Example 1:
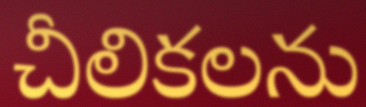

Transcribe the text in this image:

చీలికలను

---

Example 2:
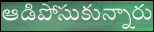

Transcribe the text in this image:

ఆడిపోసుకున్నారు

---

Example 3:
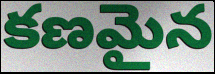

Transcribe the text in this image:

కణమైన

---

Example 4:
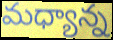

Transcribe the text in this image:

మధ్యాన్న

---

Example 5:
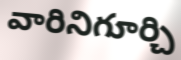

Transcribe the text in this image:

వారినిగూర్చి